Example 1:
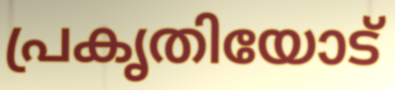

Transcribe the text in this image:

പ്രകൃതിയോട്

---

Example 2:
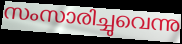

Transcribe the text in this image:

സംസാരിച്ചുവെന്നു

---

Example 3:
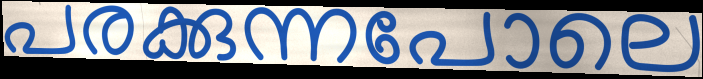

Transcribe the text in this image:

പരക്കുന്നപോലെ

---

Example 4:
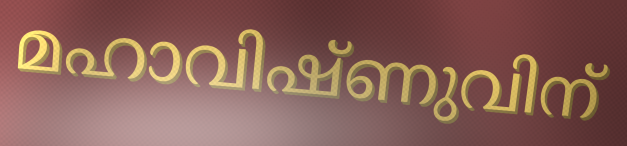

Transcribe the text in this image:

മഹാവിഷ്ണുവിന്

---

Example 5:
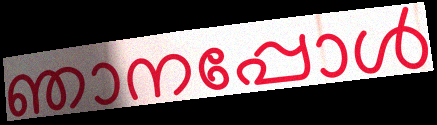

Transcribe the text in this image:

ഞാനപ്പോൾ